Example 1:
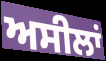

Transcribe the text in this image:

ਅਸੀਲਾਂ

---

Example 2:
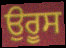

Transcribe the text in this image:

ਉਰੂਸ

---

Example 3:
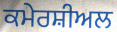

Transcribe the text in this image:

ਕਮੇਰਸ਼ੀਅਲ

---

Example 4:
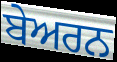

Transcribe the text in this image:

ਬੇਅਰਨ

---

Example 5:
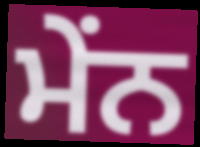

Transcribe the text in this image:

ਮੇਂਨ